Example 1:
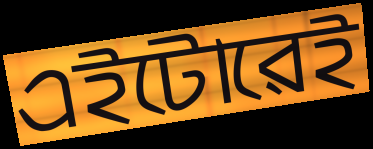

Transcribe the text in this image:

এইটোৱেই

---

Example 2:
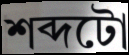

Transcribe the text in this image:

শব্দটো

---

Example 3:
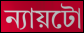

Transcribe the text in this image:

ন্যায়টো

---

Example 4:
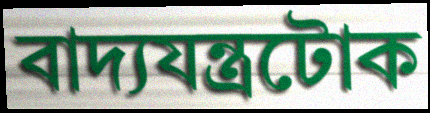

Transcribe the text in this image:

বাদ্যযন্ত্ৰটোক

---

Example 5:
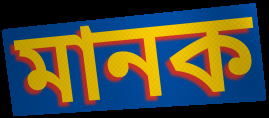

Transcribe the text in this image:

মানক